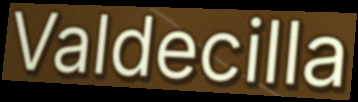
Valdecilla